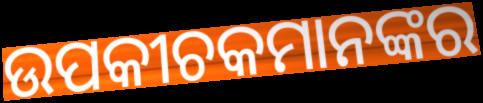
ଉପକୀଚକମାନଙ୍କର